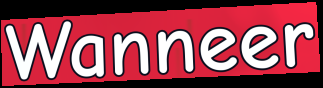
Wanneer